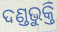
ଦଣ୍ଡଭୁକ୍ତି